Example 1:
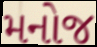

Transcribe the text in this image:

મનોજ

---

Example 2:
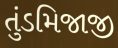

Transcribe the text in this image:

તુંડમિજાજી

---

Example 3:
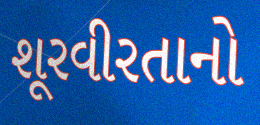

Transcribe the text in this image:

શૂરવીરતાનો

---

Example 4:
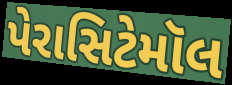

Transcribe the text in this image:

પેરાસિટેમૉલ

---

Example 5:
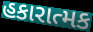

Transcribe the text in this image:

હકારાત્મક